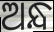
ଅନ୍ଧ